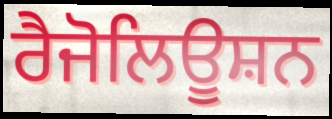
ਰੈਜੋਲਿਊਸ਼ਨ